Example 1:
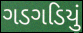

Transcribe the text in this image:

ગડગડિયું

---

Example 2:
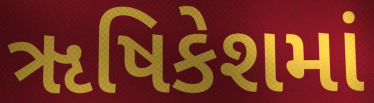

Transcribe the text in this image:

ૠષિકેશમાં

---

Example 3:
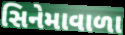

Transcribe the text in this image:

સિનેમાવાળા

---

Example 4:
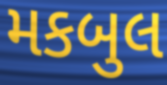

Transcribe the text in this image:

મકબુલ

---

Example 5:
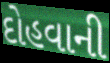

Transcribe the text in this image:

દોહવાની